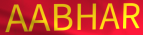
AABHAR